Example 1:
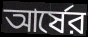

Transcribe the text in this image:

আর্ষের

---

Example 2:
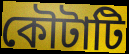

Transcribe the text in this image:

কৌটাটি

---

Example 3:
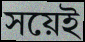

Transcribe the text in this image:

সয়েই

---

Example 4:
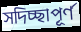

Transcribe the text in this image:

সদিচ্ছাপূর্ণ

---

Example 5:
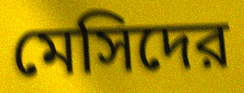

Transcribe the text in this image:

মেসিদের